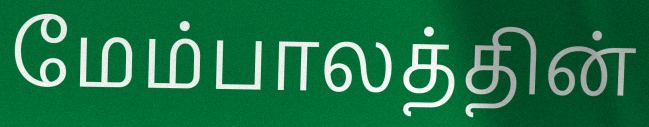
மேம்பாலத்தின்